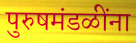
पुरुषमंडळींना